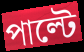
পাল্টে